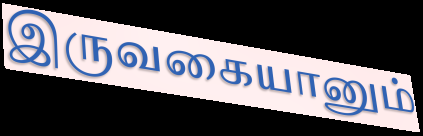
இருவகையானும்